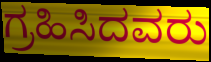
ಗ್ರಹಿಸಿದವರು